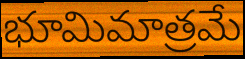
భూమిమాత్రమే